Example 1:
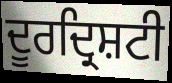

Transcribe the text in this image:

ਦੂਰਦ੍ਰਿਸ਼ਟੀ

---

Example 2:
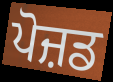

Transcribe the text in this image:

ਪੋਜ਼ਡ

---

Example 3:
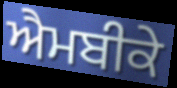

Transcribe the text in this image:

ਐਮਬੀਕੇ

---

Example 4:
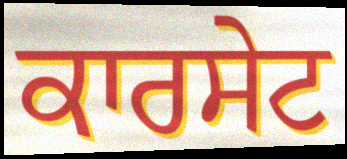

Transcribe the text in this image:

ਕਾਰਸੇਟ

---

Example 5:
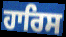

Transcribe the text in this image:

ਹਾਰਿਸ